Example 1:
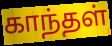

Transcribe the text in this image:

காந்தள்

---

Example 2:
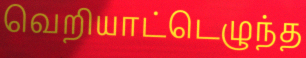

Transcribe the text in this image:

வெறியாட்டெழுந்த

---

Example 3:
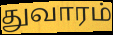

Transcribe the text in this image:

துவாரம்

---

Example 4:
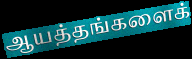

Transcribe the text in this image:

ஆயத்தங்களைக்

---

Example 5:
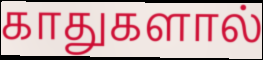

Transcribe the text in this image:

காதுகளால்